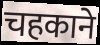
चहकाने